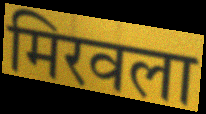
मिरवला